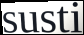
susti